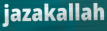
jazakallah